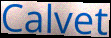
Calvet